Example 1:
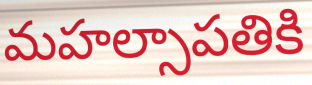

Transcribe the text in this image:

మహల్సాపతికి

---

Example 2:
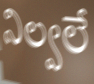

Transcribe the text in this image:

నిల్వలే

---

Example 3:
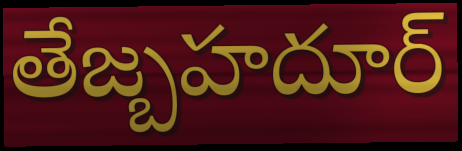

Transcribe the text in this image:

తేజ్బహదూర్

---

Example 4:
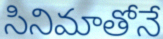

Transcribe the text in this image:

సినిమాతోనే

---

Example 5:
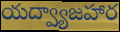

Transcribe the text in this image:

యద్వ్యాజహార